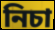
নিচা